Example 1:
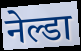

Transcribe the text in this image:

नेल्डा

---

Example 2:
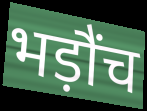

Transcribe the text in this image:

भड़ौंच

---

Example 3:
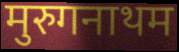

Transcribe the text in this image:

मुरुगनाथम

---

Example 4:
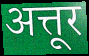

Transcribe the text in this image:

अत्तूर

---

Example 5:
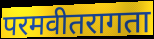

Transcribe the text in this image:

परमवीतरागता